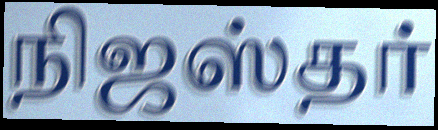
நிஜஸ்தர்